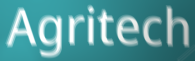
Agritech